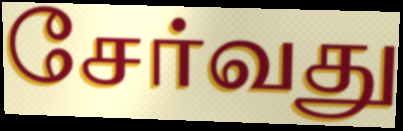
சேர்வது